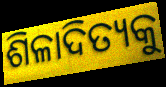
ଶିଳାଦିତ୍ୟକୁ